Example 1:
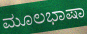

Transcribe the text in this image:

ಮೂಲಭಾಷಾ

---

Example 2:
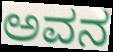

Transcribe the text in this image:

ಅವನ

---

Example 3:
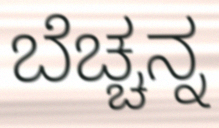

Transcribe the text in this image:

ಬೆಚ್ಚನ್ನ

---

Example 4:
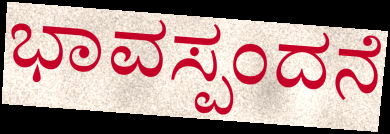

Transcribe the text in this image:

ಭಾವಸ್ಪಂದನೆ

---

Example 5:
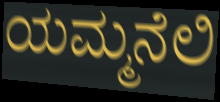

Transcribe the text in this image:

ಯಮ್ಮನೆಲಿ